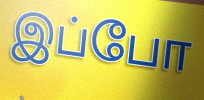
இப்போ